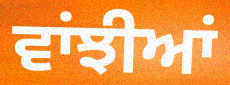
ਵਾਂਝੀਆਂ